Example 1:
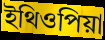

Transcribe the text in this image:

ইথিওপিয়া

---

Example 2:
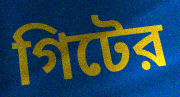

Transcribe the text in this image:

গিটের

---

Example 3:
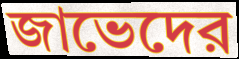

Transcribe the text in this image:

জাভেদের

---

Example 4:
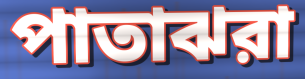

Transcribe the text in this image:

পাতাঝরা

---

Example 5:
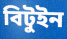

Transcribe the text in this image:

বিটুইন